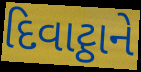
દિવાટ્ઠાને